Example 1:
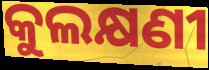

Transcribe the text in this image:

କୁଲକ୍ଷଣୀ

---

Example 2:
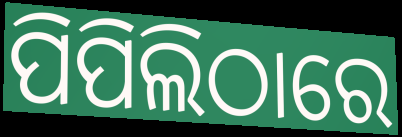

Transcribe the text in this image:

ପିପିଲିଠାରେ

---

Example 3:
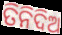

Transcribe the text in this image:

ତିନିଦିଅ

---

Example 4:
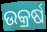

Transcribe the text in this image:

ଉକ୍ରର୍ଷ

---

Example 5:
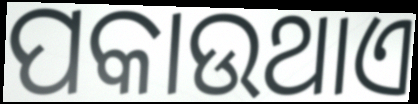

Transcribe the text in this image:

ପକାଉଥାଏ